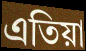
এতিয়া